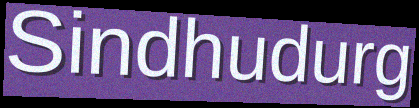
Sindhudurg